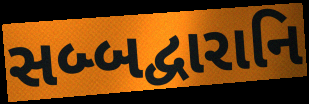
સબ્બદ્વારાનિ